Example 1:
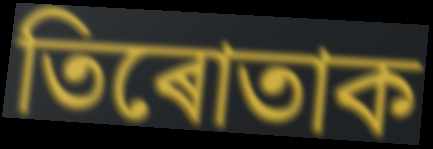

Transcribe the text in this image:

তিৰোতাক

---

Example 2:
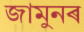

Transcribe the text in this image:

জামুনৰ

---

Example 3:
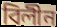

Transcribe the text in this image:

বিলীন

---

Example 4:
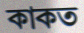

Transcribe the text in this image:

কাকত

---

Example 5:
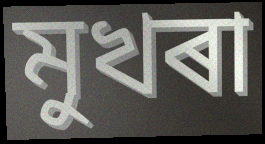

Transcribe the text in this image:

মুখৰা